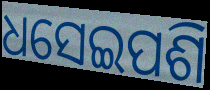
ଧସେଇପଶି